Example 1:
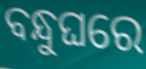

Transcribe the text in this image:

ବନ୍ଧୁଘରେ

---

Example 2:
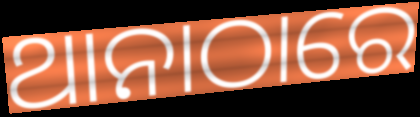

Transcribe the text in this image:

ଥାନାଠାରେ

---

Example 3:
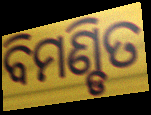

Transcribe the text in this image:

ବିମଣ୍ଡିତ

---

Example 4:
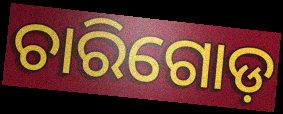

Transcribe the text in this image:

ଚାରିଗୋଡ଼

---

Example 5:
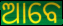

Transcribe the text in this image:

ଆବେ